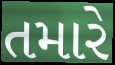
તમારે